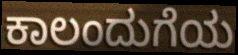
ಕಾಲಂದುಗೆಯ